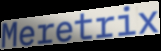
Meretrix